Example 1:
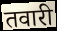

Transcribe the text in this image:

तवारी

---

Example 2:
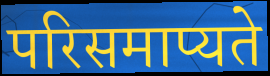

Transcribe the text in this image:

परिसमाप्यते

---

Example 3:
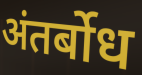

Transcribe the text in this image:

अंतर्बोध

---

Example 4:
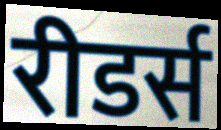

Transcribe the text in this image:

रीडर्स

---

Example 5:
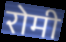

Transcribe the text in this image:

रोमी